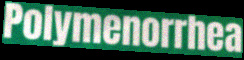
Polymenorrhea